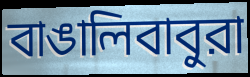
বাঙালিবাবুরা